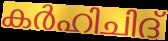
കർഹിചിദ്